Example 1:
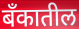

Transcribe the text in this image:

बँकातील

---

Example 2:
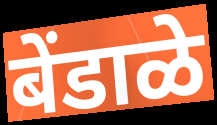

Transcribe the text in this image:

बेंडाळे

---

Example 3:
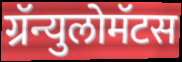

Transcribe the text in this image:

ग्रॅन्युलोमॅटस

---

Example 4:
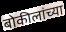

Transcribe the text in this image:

बोकीलांच्या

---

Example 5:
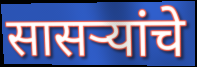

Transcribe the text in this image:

सासर्‍यांचे